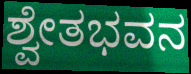
ಶ್ವೇತಭವನ